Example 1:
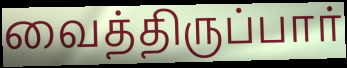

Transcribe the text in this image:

வைத்திருப்பார்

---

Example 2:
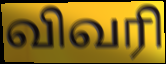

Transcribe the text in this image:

விவரி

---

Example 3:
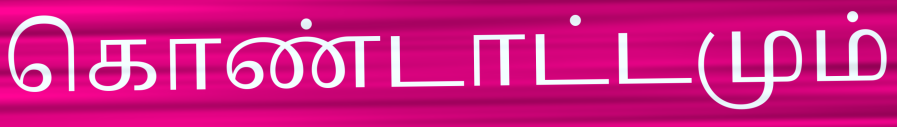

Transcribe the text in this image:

கொண்டாட்டமும்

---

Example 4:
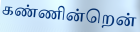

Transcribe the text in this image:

கண்ணின்றென்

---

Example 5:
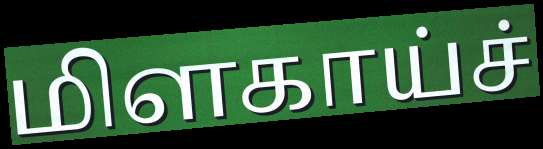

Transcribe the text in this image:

மிளகாய்ச்